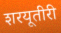
शरयूतीरी